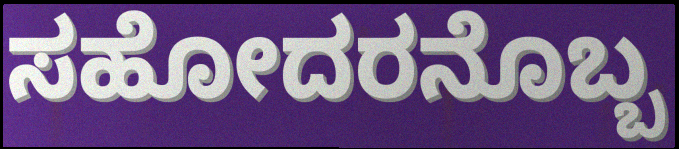
ಸಹೋದರನೊಬ್ಬ